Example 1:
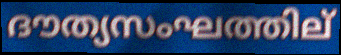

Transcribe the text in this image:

ദൗത്യസംഘത്തില്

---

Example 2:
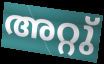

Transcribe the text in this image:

അറ്റു്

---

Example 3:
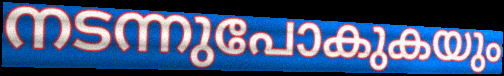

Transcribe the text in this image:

നടന്നുപോകുകയും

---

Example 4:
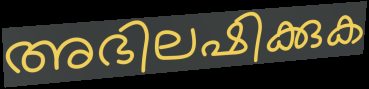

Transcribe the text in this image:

അഭിലഷിക്കുക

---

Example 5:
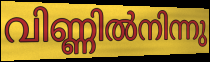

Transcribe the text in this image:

വിണ്ണിൽനിന്നു